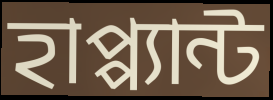
হাপ্প্যান্ট